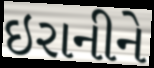
ઇરાનીને